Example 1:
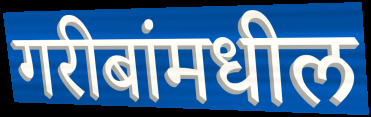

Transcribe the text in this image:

गरीबांमधील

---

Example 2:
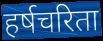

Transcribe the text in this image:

हर्षचरिता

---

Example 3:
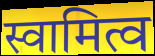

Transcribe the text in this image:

स्वामित्व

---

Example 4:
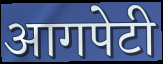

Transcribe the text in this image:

आगपेटी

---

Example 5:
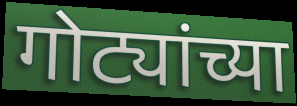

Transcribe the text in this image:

गोट्यांच्या